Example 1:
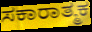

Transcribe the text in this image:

ಸಕಾರಾತ್ಮಕ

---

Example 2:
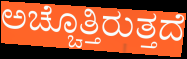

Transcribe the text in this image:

ಅಚ್ಚೊತ್ತಿರುತ್ತದೆ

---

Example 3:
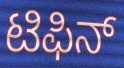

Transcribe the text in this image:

ಟಿಫಿನ್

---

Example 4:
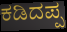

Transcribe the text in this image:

ಕಡಿದಪ್ಪ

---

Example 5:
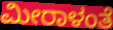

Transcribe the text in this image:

ಮೀರಾಳಂತೆ